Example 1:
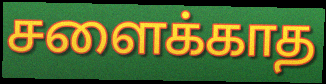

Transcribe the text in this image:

சளைக்காத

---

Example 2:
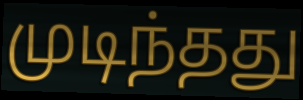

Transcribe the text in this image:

முடிந்தது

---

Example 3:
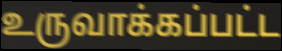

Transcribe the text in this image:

உருவாக்கப்பட்ட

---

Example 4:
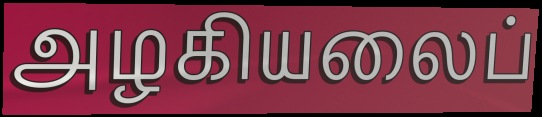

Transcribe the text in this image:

அழகியலைப்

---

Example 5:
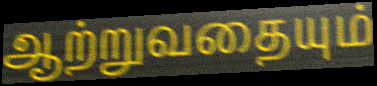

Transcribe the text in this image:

ஆற்றுவதையும்